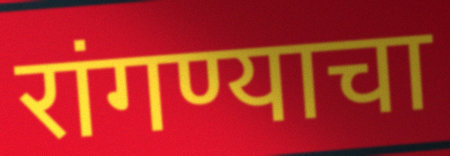
रांगण्याचा